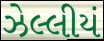
ઝેલ્લીયં